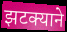
झटक्याने